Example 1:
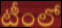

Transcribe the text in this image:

టీంలో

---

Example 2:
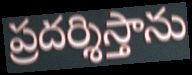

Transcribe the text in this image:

ప్రదర్శిస్తాను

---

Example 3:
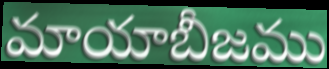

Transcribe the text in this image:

మాయాబీజము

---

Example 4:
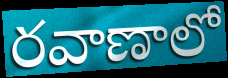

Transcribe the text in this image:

రవాణాలో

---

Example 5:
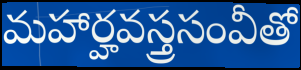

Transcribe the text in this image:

మహార్హవస్త్రసంవీతో